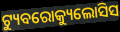
ଟ୍ୟୁବରୋକ୍ୟୁଲୋସିସ